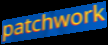
patchwork